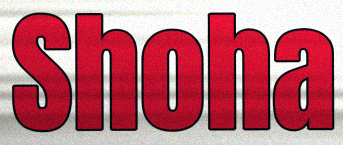
Shoha